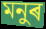
মনুৰ